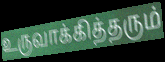
உருவாக்கித்தரும்